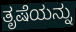
ತೃಷೆಯನ್ನು